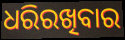
ଧରିରଖିବାର